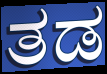
ತಡ